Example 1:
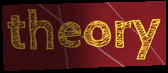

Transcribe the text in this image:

theory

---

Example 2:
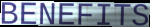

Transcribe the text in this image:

BENEFITS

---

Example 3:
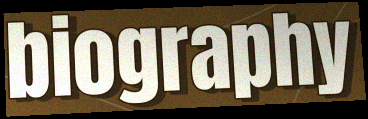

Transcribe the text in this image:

biography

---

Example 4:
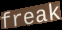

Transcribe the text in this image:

freak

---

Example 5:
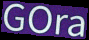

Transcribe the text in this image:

GOra